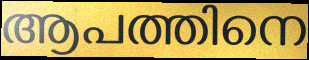
ആപത്തിനെ